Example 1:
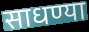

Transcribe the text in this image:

साधण्या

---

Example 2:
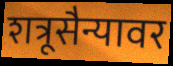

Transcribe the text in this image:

शत्रूसैन्यावर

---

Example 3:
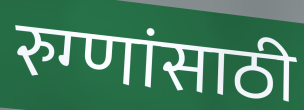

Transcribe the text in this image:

रुग्णांसाठी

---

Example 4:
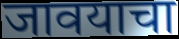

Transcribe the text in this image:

जावयाचा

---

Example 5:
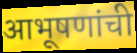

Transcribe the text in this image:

आभूषणांची